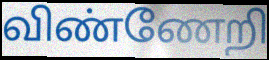
விண்ணேறி